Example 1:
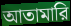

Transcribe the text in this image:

আতামারি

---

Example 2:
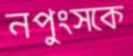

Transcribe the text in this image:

নপুংসকে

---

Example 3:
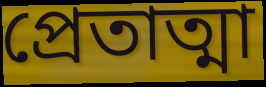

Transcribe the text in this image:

প্রেতাত্মা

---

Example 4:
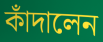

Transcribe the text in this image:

কাঁদালেন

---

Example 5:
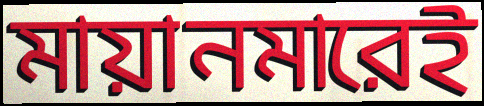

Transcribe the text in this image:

মায়ানমারেই